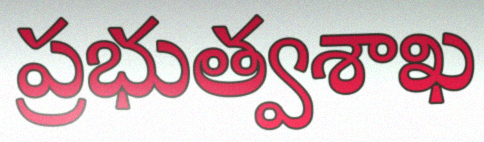
ప్రభుత్వశాఖ